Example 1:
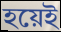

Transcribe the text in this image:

হয়েই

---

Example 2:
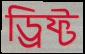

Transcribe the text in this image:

ড্রিফ্ট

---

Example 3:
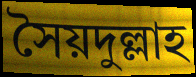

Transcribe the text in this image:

সৈয়দুল্লাহ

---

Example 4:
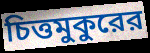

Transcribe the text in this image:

চিত্তমুকুরের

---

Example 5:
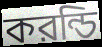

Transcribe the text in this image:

করন্ডি